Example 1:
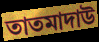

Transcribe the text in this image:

তাতমাদাউ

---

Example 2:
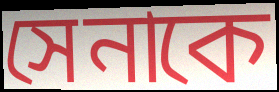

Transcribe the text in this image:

সেনাকে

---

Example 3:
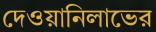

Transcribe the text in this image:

দেওয়ানিলাভের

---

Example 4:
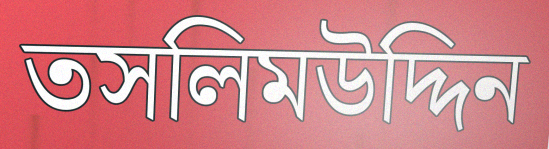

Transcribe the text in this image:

তসলিমউদ্দিন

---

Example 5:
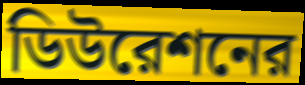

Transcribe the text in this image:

ডিউরেশনের